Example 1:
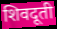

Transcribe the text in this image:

शिवदूती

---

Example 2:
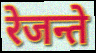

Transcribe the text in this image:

रेजन्ते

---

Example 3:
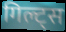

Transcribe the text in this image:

गिल्ट्स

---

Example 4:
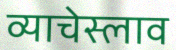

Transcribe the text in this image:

व्याचेस्लाव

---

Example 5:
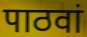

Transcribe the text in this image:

पाठवां